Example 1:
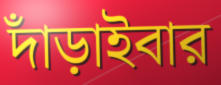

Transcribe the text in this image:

দাঁড়াইবার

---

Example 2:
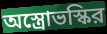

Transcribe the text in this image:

অস্ত্রোভস্কির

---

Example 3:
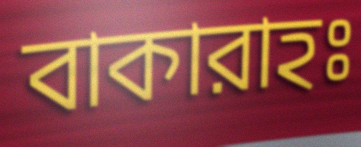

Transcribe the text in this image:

বাকারাহঃ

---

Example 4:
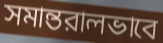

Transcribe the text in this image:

সমান্তরালভাবে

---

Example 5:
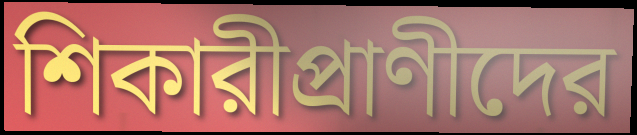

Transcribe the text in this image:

শিকারীপ্রাণীদের